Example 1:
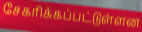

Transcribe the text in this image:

சேகரிக்கப்பட்டுள்ளன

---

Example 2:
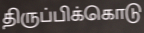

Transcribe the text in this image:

திருப்பிக்கொடு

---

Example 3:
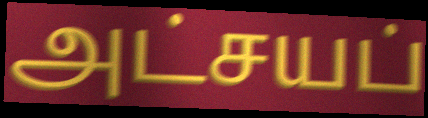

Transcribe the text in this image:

அட்சயப்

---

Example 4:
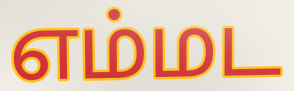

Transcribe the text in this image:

எம்மட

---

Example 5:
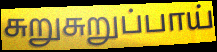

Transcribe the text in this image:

சுறுசுறுப்பாய்